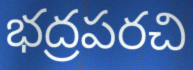
భద్రపరచి